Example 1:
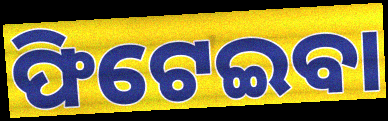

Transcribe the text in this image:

ଫିଟେଇବା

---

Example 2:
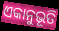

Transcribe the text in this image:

ଏକାନୁଭୂତି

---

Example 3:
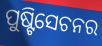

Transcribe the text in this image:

ପୁଷ୍ଟିସେଚନର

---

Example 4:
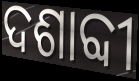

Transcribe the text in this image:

ଦଶାବ୍ଦୀ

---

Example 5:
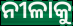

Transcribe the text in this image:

ନୀଳାକୁ